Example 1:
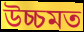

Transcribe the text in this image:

উচ্চমত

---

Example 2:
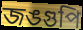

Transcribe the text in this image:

জঙগুপি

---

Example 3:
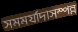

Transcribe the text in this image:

সমমর্যাদাসম্পন্ন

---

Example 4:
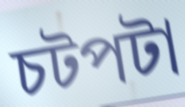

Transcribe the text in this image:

চটপটা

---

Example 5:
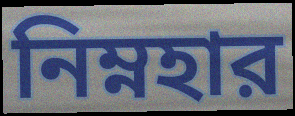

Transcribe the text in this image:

নিম্নহার